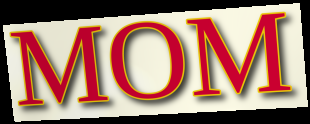
MOM